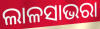
ଲାଳସାଭରା